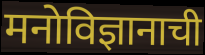
मनोविज्ञानाची